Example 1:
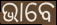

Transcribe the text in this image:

ଭାବେ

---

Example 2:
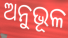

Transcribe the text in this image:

ଅନୁଭୂଳ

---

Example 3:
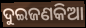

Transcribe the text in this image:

ଦୁଇଜଣକିଆ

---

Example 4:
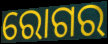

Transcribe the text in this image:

ରୋଗର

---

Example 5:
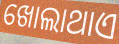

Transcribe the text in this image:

ଖୋଲାଥାଏ